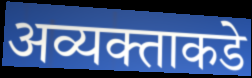
अव्यक्ताकडे